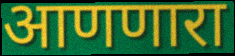
आणणारा